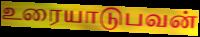
உரையாடுபவன்